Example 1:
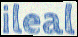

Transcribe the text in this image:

ileal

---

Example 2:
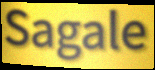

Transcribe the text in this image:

Sagale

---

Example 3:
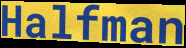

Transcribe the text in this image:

Halfman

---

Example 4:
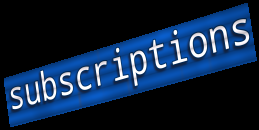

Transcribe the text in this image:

subscriptions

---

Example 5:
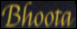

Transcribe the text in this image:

Bhoota